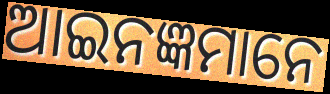
ଆଇନଜ୍ଞମାନେ